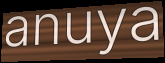
anuya